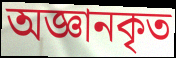
অজ্ঞানকৃত